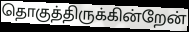
தொகுத்திருக்கின்றேன்